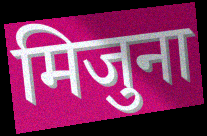
मिजुना